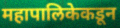
महापालिकेकडून